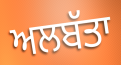
ਅਲਬੱਤਾ